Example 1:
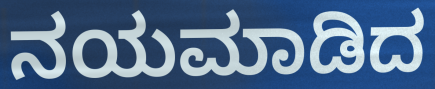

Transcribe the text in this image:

ನಯಮಾಡಿದ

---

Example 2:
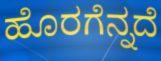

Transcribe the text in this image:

ಹೊರಗೆನ್ನದೆ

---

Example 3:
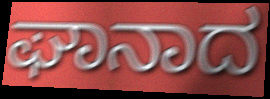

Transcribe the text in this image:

ಘಾನಾದ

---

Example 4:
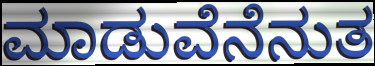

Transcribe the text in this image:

ಮಾಡುವೆನೆನುತ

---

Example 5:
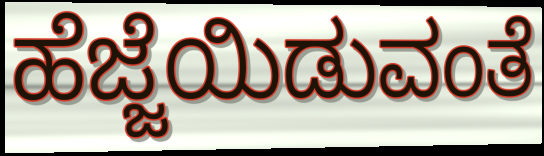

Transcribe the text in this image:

ಹೆಜ್ಜೆಯಿಡುವಂತೆ